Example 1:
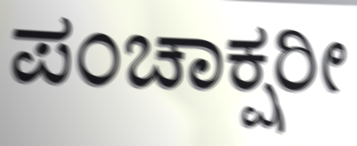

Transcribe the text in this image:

ಪಂಚಾಕ್ಷರೀ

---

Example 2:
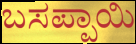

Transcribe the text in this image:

ಬಸಪ್ಪಾಯಿ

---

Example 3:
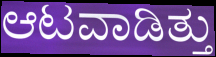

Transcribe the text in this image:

ಆಟವಾಡಿತ್ತು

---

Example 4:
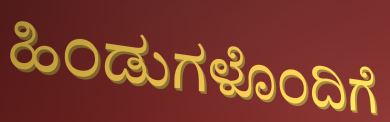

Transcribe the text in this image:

ಹಿಂಡುಗಳೊಂದಿಗೆ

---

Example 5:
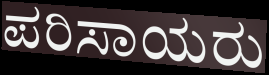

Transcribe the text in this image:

ಪರಿಸಾಯರು